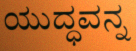
ಯುದ್ಧವನ್ನ